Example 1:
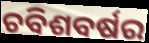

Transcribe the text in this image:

ଚବିଶବର୍ଷର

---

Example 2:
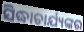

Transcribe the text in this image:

ସିଦ୍ଧାଚାର୍ଯ୍ୟଙ୍କର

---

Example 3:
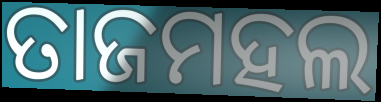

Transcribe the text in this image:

ତାଜମହଲ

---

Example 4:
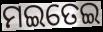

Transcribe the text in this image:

ମଇତେଇ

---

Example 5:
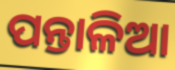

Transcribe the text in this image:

ପନ୍ତାଳିଆ